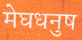
मेघधनुष